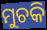
ମୁଚକି